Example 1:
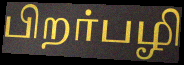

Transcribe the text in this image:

பிறர்பழி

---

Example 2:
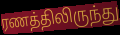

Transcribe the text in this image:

ரணத்திலிருந்து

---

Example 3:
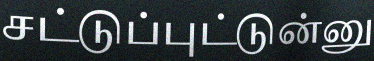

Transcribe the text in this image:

சட்டுப்புட்டுன்னு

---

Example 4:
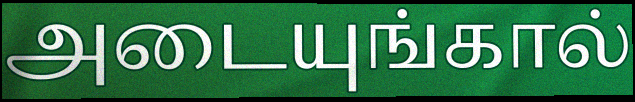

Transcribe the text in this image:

அடையுங்கால்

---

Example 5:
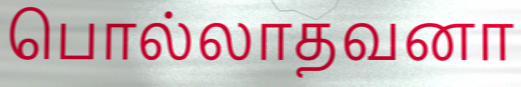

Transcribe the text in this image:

பொல்லாதவனா